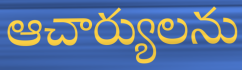
ఆచార్యులను